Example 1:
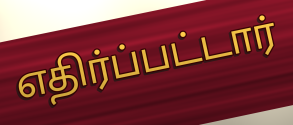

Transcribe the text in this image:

எதிர்ப்பட்டார்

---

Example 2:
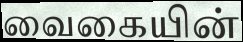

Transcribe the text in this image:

வைகையின்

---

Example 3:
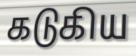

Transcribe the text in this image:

கடுகிய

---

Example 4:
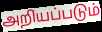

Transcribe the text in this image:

அறியப்படும்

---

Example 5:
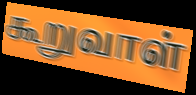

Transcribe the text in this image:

கூறுவாள்